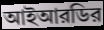
আইআরডির